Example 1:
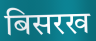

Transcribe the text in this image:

बिसरख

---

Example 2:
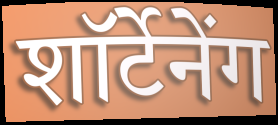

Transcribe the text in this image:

शॉर्टेनेंग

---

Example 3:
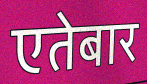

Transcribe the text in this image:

एतेबार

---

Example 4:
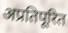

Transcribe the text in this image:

अप्रतिपूरित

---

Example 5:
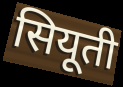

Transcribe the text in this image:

सियूती